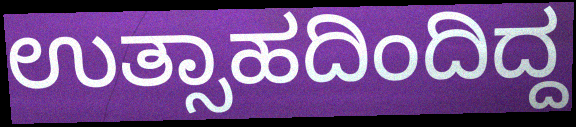
ಉತ್ಸಾಹದಿಂದಿದ್ದ